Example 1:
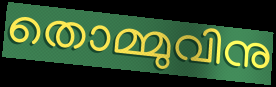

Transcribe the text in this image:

തൊമ്മുവിനു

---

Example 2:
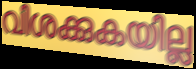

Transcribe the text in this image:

വിശക്കുകയില്ല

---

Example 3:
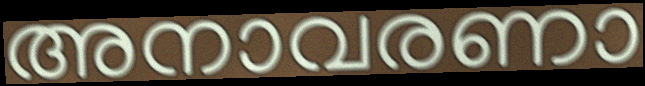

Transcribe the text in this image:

അനാവരണാ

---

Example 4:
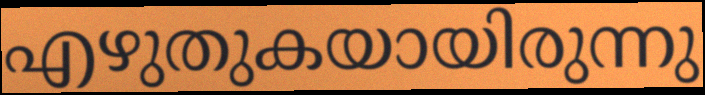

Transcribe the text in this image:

എഴുതുകയായിരുന്നു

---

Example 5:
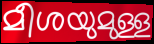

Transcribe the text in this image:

മീശയുമുള്ള